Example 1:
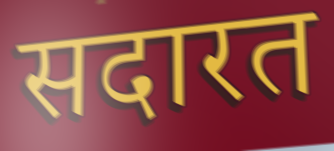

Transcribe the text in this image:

सदारत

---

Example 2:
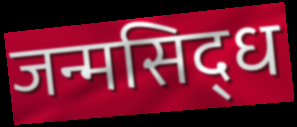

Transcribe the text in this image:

जन्‍मसिद्ध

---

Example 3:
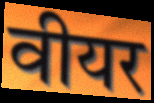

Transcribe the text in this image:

वीयर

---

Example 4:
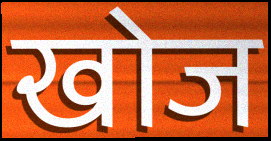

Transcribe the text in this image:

खोज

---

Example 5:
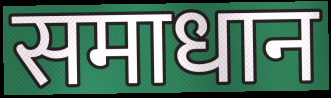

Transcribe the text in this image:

समाधान